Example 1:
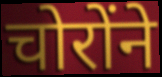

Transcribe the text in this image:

चोरोंने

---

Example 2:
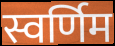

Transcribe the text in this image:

स्‍वर्णिम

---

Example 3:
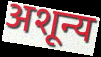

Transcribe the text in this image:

अशून्य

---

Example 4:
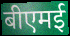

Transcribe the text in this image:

बीएमई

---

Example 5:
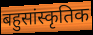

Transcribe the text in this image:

बहुसांस्कृतिक